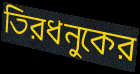
তিরধনুকের